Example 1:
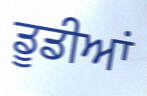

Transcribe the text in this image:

ਡੂਡੀਆਂ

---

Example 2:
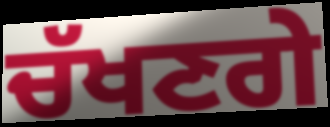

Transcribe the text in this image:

ਚੱਖਣਗੇ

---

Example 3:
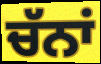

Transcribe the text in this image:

ਚੱਨਾਂ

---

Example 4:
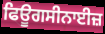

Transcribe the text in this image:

ਫਿਊਗਸੀਨਾਈਜ਼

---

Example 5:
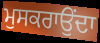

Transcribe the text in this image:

ਮੁਸਕਰਾਉਂਦਾ